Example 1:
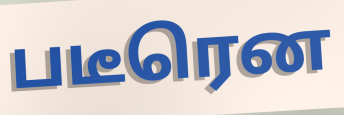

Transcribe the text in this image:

படீரென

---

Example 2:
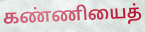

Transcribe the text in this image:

கண்ணியைத்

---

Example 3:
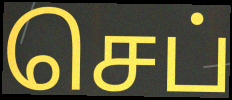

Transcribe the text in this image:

செப்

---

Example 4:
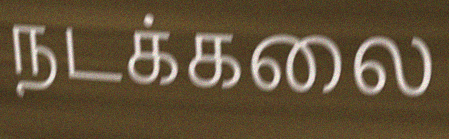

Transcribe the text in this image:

நடக்கலை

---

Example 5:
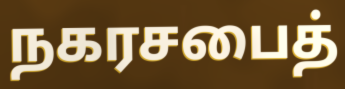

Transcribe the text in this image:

நகரசபைத்